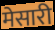
मेसारी